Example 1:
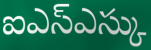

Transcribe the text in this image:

ఐఎస్ఎస్కు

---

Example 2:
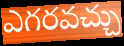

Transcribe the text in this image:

ఎగరవచ్చు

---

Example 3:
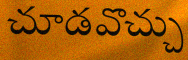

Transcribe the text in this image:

చూడవొచ్చు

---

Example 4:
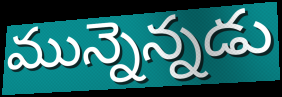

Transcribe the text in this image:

మున్నెన్నడు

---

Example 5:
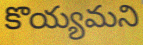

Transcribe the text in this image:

కొయ్యమని